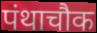
पंथाचौक